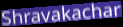
Shravakachar